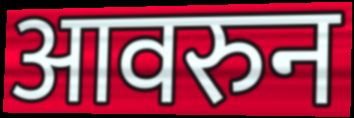
आवरुन